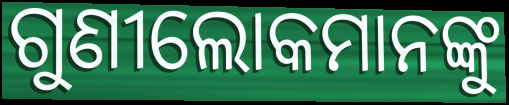
ଗୁଣୀଲୋକମାନଙ୍କୁ